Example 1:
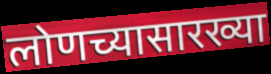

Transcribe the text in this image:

लोणच्यासारख्या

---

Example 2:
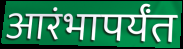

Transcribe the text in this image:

आरंभापर्यंत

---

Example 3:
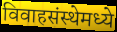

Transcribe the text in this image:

विवाहसंस्थेमध्ये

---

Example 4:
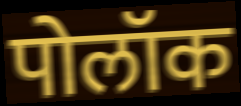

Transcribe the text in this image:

पोलॉक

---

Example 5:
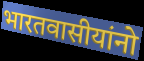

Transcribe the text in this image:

भारतवासीयांनो